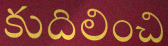
కుదిలించి